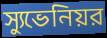
স্যুভেনিয়র